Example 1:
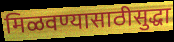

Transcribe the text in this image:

मिळवण्यासाठीसुद्धा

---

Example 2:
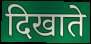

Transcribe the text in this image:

दिखाते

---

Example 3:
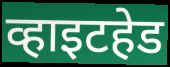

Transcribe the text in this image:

व्हाइटहेड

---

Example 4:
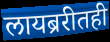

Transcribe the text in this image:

लायब्ररीतही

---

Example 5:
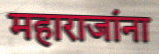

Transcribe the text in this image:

महाराजांना